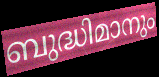
ബുദ്ധിമാനും